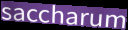
saccharum